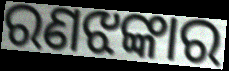
ରଣଝଙ୍କାର